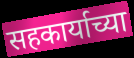
सहकार्याच्या